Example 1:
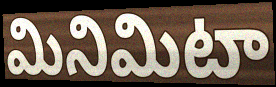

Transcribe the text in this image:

మినిమిటా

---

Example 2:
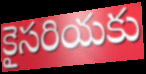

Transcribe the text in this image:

కైసరియకు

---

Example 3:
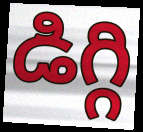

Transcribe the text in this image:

డిగ్గి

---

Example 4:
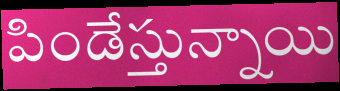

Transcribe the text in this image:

పిండేస్తున్నాయి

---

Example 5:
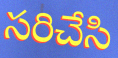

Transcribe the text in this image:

సరిచేసి